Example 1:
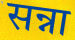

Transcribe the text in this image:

सन्ना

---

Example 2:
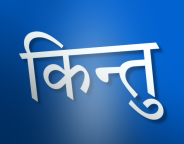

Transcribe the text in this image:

किन्‍तु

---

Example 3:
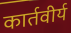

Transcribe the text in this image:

कार्तवीर्य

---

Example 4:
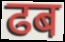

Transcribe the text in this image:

ढब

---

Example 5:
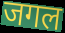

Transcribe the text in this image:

जगल